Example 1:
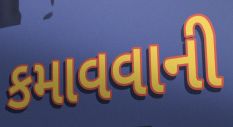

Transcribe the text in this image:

કમાવવાની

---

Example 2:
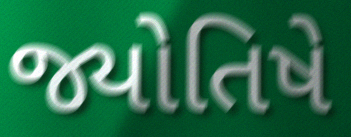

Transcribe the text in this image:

જ્યોતિષે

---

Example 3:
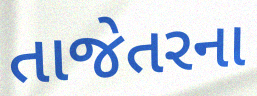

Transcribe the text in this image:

તાજેતરના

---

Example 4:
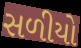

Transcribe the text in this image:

સળીયો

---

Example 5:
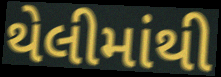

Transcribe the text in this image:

થેલીમાંથી